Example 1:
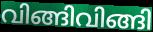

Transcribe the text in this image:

വിങ്ങിവിങ്ങി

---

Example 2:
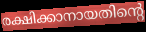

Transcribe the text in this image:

രക്ഷിക്കാനായതിന്റെ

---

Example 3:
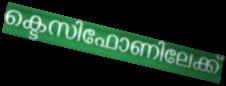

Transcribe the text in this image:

ക്ടെസിഫോണിലേക്ക്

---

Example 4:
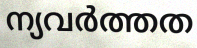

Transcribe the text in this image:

ന്യവർത്തത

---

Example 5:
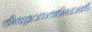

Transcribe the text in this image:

തീരുമാനത്തിലാണ്